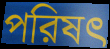
পরিষৎ